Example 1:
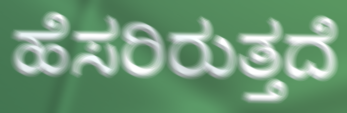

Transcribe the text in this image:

ಹೆಸರಿರುತ್ತದೆ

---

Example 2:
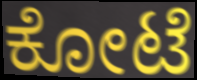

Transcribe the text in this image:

ಕೋಟೆ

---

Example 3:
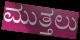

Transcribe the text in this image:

ಮುತ್ತಲು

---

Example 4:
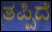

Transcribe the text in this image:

ತಪ್ಪಿದೆ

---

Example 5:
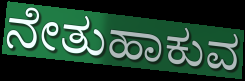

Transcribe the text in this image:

ನೇತುಹಾಕುವ